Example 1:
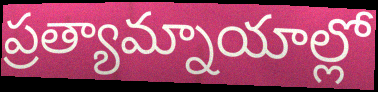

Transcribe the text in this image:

ప్రత్యామ్నాయాల్లో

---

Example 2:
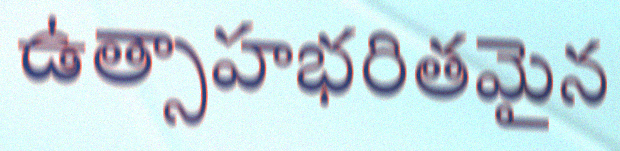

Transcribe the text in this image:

ఉత్సాహభరితమైన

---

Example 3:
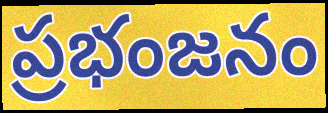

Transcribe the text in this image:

ప్రభంజనం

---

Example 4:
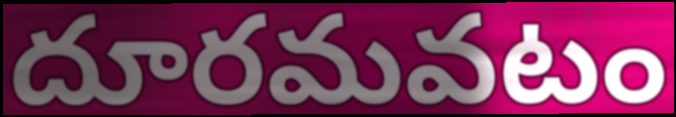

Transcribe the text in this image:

దూరమవటం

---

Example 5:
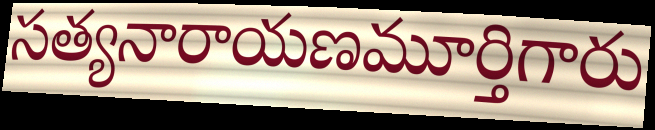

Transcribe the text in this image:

సత్యనారాయణమూర్తిగారు